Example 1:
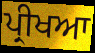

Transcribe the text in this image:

ਪ੍ਰੀਖਆ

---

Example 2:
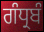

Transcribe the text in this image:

ਗੰਧ੍ਰਬੰ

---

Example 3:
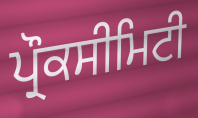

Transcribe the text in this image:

ਪ੍ਰੌਕਸੀਮਿਟੀ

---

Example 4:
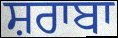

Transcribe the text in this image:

ਸ਼ਰਾਬਾ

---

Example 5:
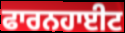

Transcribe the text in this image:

ਫਾਰਨਹਾਈਟ